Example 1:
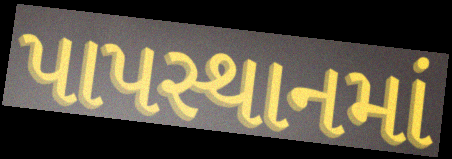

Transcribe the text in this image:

પાપસ્થાનમાં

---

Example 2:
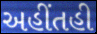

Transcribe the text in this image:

અહીંતહી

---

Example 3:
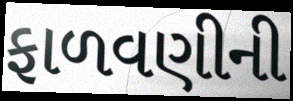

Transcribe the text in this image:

ફાળવણીની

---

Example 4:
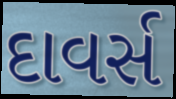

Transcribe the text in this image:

દાવર્સ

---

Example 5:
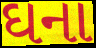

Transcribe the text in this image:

ઘના